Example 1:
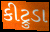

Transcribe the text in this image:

કીટ્રુડા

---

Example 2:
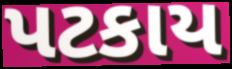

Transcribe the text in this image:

પટકાય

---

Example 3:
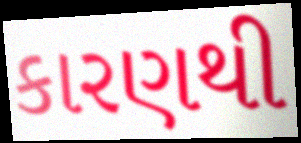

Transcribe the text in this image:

કારણથી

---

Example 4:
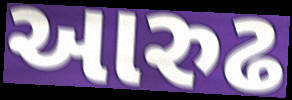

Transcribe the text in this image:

આરુઢ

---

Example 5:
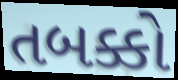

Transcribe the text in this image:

તબક્કો